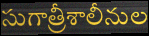
సుగాత్రీశాలీనుల